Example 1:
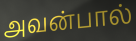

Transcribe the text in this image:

அவன்பால்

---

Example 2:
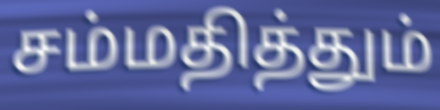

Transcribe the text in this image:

சம்மதித்தும்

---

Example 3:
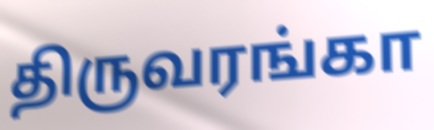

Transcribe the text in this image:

திருவரங்கா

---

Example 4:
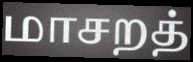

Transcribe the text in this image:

மாசறத்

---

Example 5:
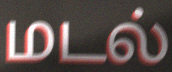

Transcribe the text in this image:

மடல்